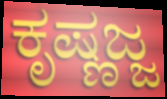
ಕೃಷ್ಣಜ್ಜ